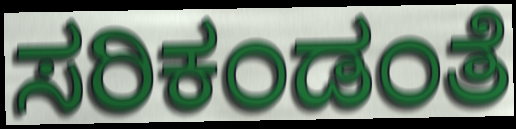
ಸರಿಕಂಡಂತೆ